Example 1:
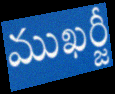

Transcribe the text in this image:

ముఖర్జీ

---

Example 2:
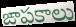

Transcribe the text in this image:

ఙాపకాలు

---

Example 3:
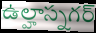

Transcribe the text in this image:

ఉల్హాస్నగర్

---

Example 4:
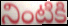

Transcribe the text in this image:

నింటికి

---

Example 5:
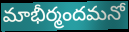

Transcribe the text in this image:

మాభీర్మందమనో